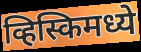
व्हिस्किमध्ये